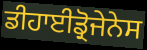
ਡੀਹਾਈਡ੍ਰੋਜੇਨੇਸ